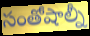
సంతోషాల్నీ